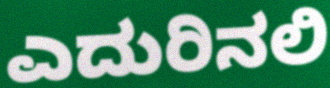
ಎದುರಿನಲಿ